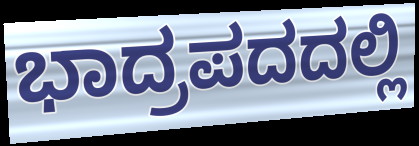
ಭಾದ್ರಪದದಲ್ಲಿ